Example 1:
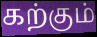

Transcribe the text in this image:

கற்கும்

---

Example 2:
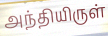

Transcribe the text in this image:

அந்தியிருள்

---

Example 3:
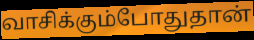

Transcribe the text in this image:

வாசிக்கும்போதுதான்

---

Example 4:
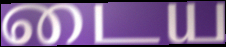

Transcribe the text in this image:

டைய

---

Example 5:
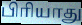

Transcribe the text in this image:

பிரியாது